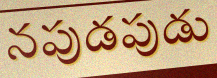
నపుడపుడు